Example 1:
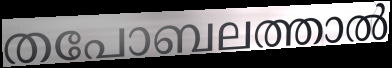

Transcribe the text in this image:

തപോബലത്താൽ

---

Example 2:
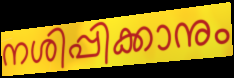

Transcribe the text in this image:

നശിപ്പിക്കാനും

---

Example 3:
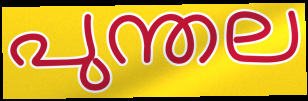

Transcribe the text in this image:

പുന്തല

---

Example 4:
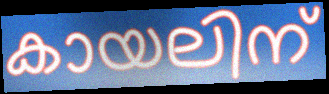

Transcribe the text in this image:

കായലിന്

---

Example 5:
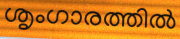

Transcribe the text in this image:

ശൃംഗാരത്തിൽ